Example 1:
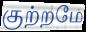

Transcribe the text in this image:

குற்றமே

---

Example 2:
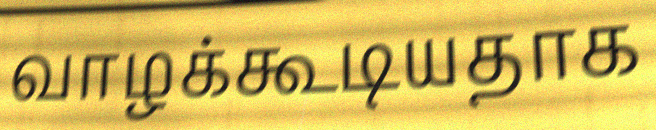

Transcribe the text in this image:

வாழக்கூடியதாக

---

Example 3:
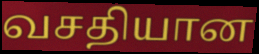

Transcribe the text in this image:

வசதியான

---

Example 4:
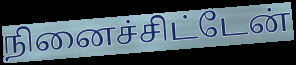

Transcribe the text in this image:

நினைச்சிட்டேன்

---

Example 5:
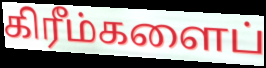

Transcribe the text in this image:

கிரீம்களைப்